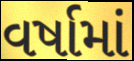
વર્ષામાં